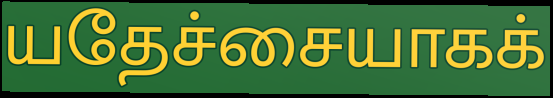
யதேச்சையாகக்